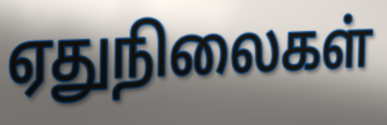
ஏதுநிலைகள்